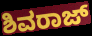
ಶಿವರಾಜ್